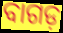
ବାଗଡ଼